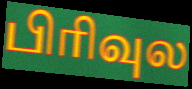
பிரிவுல